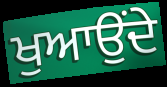
ਖੁਆਉਂਦੇ